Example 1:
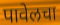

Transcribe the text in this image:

पावेलचा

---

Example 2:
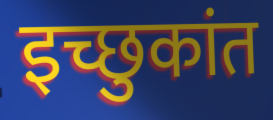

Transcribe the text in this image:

इच्छुकांत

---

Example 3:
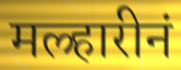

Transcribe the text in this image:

मल्हारीनं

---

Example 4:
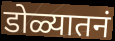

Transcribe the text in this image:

डोळ्यातनं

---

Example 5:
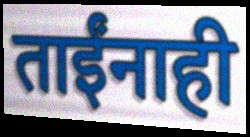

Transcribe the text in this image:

ताईंनाही